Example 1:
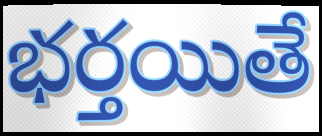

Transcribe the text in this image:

భర్తయితే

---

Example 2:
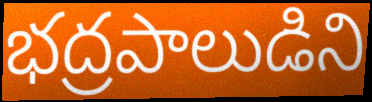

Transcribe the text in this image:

భద్రపాలుడిని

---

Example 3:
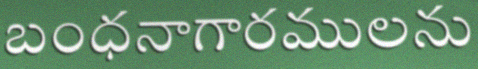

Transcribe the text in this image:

బంధనాగారములను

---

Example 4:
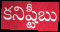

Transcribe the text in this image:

కనిష్టీబు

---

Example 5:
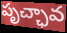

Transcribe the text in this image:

పృచ్ఛావ